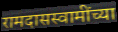
रामदासस्वामींच्या